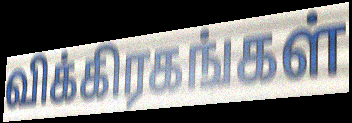
விக்கிரகங்கள்